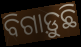
ବିଗାଡ଼ୁଛି